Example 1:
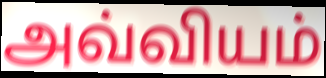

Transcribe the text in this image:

அவ்வியம்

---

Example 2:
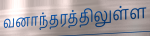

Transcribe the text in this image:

வனாந்தரத்திலுள்ள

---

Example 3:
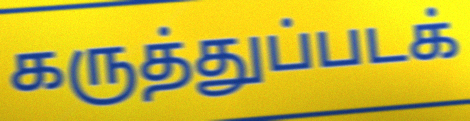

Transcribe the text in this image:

கருத்துப்படக்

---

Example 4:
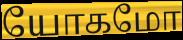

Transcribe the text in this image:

யோகமோ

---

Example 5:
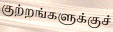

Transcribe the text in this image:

குற்றங்களுக்குச்